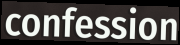
confession